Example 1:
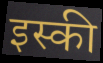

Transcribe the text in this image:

इस्की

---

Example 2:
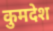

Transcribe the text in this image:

कुमदेश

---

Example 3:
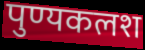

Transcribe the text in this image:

पुण्यकलश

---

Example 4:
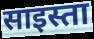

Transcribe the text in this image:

साइस्ता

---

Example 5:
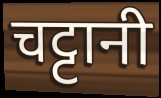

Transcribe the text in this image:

चट्टानी